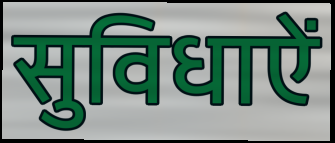
सुविधाऐं